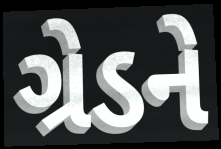
ગ્રેડને